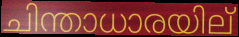
ചിന്താധാരയില്